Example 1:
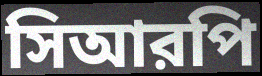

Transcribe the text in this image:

সিআরপি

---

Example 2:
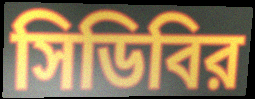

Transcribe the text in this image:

সিডিবির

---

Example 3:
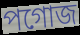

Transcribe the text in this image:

পগোজ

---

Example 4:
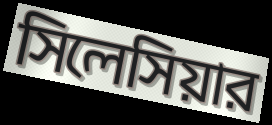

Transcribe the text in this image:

সিলেসিয়ার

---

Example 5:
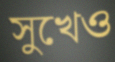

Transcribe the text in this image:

সুখেও